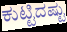
ಕುಟ್ಟಿದಷ್ಟು